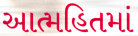
આત્મહિતમાં